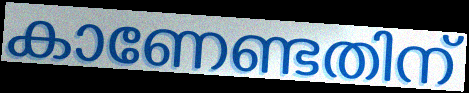
കാണേണ്ടതിന്